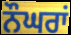
ਨੌਘਰਾਂ